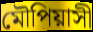
মৌপিয়াসী